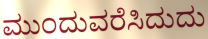
ಮುಂದುವರೆಸಿದುದು